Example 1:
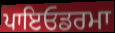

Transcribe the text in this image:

ਪਾਇਓਡਰਮਾ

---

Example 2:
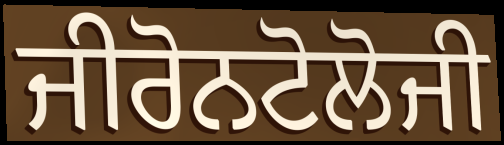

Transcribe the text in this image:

ਜੀਰੋਨਟੋਲੋਜੀ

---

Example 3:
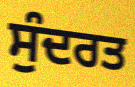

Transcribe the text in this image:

ਸੁੰਦਰਤ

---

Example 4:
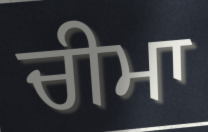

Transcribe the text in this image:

ਚੀਮਾ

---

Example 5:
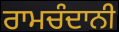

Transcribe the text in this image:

ਰਾਮਚੰਦਾਨੀ